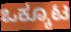
ಒಕ್ಕೂಟ